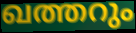
ഖത്തറും